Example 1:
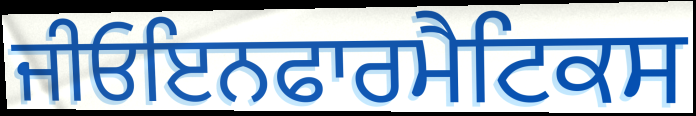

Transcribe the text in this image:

ਜੀਓਇਨਫਾਰਮੈਟਿਕਸ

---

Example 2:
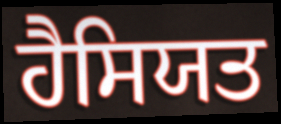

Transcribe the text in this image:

ਹੈਸਿਯਤ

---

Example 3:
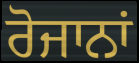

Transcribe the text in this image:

ਰੋਜਾਨਾਂ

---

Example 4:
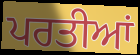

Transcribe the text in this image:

ਪਰਤੀਆਂ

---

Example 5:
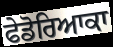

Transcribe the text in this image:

ਫੇਡੋਰਿਆਕਾ